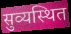
सुव्यस्थित